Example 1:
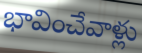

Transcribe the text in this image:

భావించేవాళ్లు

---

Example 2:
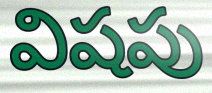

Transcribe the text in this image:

విషపు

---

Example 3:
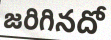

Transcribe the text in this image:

జరిగినదో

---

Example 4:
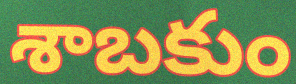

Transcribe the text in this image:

శాబకుం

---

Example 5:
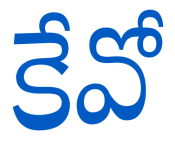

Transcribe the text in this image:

కేవో